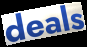
deals